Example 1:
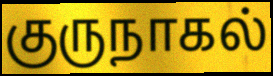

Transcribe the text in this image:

குருநாகல்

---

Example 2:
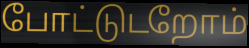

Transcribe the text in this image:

போட்டுடறோம்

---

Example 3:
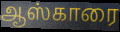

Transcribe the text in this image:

ஆஸ்காரை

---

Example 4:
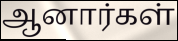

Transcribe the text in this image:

ஆனார்கள்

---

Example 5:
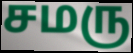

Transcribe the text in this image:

சமரு